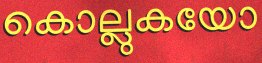
കൊല്ലുകയോ